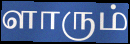
ளாரும்